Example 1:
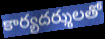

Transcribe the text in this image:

కార్యదర్శులతో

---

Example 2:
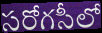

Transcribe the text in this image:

సరోగసీలో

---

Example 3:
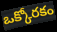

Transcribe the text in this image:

ఒక్కోరకం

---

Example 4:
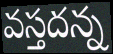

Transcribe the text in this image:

వస్తదన్న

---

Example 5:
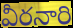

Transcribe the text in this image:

వీరనారి